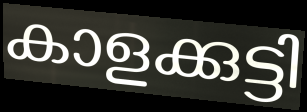
കാളക്കുട്ടി